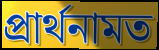
প্রার্থনামত